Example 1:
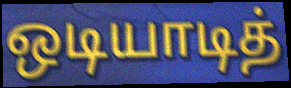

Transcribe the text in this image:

ஒடியாடித்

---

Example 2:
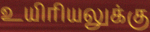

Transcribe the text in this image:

உயிரியலுக்கு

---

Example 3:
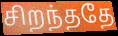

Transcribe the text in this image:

சிறந்ததே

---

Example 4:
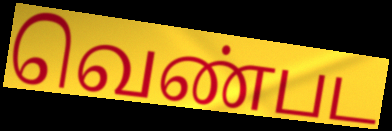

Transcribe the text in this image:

வெண்பட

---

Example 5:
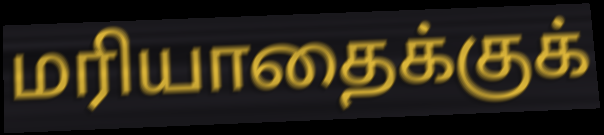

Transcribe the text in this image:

மரியாதைக்குக்